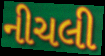
નીચલી